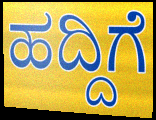
ಹದ್ದಿಗೆ